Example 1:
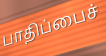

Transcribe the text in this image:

பாதிப்பைச்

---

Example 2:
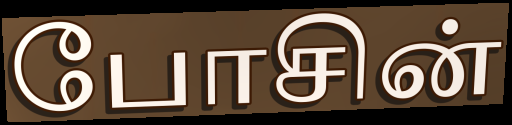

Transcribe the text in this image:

போசின்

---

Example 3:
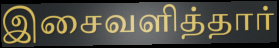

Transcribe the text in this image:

இசைவளித்தார்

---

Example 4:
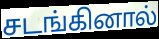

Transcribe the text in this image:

சடங்கினால்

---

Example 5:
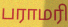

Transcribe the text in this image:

பராமரி